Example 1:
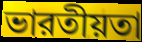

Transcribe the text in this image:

ভারতীয়তা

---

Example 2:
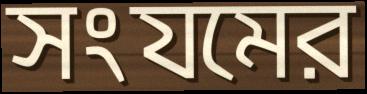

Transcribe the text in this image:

সংযমের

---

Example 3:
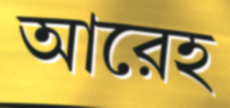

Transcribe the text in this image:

আরেহ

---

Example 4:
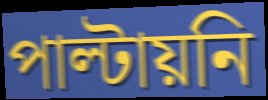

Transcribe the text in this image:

পাল্টায়নি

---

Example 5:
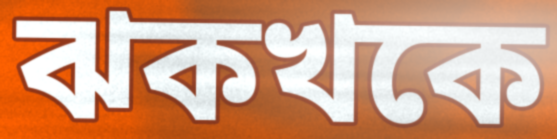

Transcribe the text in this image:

ঝকখকে